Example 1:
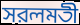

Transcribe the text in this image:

সরলমতী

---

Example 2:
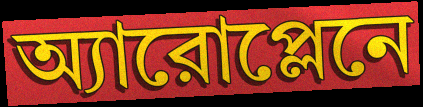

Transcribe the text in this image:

অ্যারোপ্লেনে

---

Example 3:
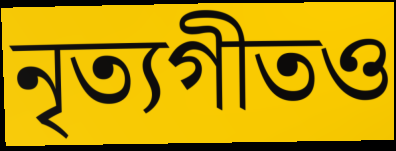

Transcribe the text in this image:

নৃত্যগীতও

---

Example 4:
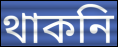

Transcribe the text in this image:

থাকনি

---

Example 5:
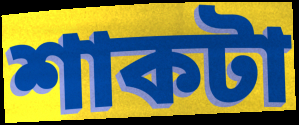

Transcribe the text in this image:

শাকটা